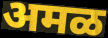
अमळ